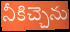
నీకిచ్చెను